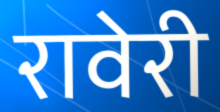
रावेरी